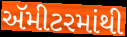
ઍમીટરમાંથી